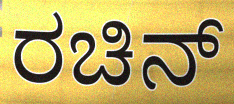
ರಚಿನ್